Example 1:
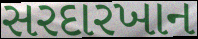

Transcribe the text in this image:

સરદારખાન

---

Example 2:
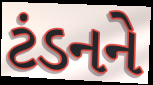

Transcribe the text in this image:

ટંડનને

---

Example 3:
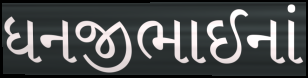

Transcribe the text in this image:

ધનજીભાઈનાં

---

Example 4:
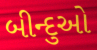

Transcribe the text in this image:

બીન્દુઓ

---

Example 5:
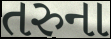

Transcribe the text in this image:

તરુના